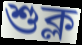
শুক্ল